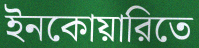
ইনকোয়ারিতে